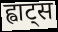
ह्वाट्स